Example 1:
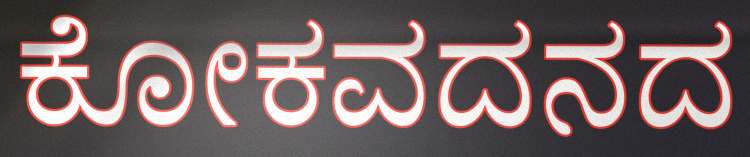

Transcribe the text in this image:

ಕೋಕವದನದ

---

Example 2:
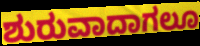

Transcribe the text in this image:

ಶುರುವಾದಾಗಲೂ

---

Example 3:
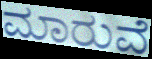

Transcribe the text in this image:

ಮಾರುವೆ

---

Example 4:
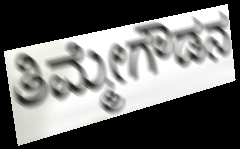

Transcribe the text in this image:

ತಿಮ್ಮೇಗೌಡನ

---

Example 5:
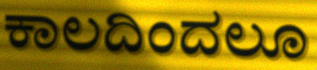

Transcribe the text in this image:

ಕಾಲದಿಂದಲೂ